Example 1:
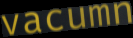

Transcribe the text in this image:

vacumn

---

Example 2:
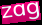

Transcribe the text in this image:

zag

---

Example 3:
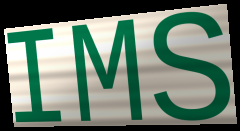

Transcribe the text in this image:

IMS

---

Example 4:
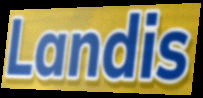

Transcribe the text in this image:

Landis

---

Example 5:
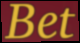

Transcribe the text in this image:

Bet